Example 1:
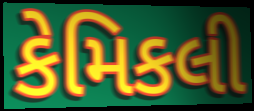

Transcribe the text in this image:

કેમિકલી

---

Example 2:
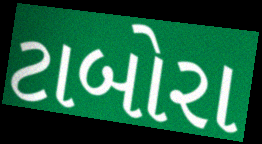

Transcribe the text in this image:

ટાબોરા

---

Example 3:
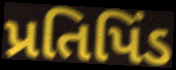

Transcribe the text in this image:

પ્રતિપિંડ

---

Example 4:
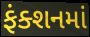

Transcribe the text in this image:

ફંક્શનમાં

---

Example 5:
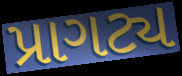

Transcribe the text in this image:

પ્રાગટ્ય